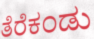
ತೆರೆಕಂಡು